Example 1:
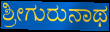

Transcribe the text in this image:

ಶ್ರೀಗುರುನಾಥ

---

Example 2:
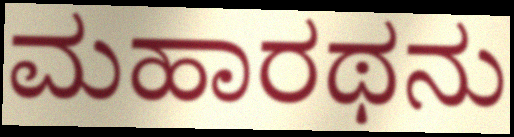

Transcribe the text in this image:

ಮಹಾರಥನು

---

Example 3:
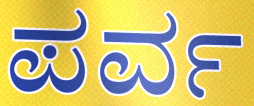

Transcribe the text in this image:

ಪರ್ವ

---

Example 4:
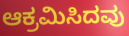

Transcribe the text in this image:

ಆಕ್ರಮಿಸಿದವು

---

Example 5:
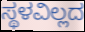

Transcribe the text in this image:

ಸ್ಥಳವಿಲ್ಲದ